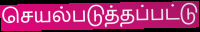
செயல்படுத்தப்பட்டு